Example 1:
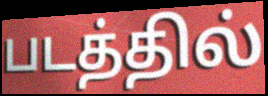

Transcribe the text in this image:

படத்தில்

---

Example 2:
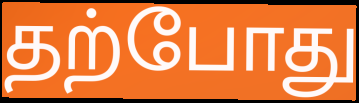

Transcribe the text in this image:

தற்போது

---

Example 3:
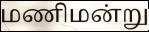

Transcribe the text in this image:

மணிமன்று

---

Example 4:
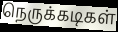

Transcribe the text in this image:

நெருக்கடிகள்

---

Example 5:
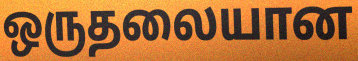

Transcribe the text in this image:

ஒருதலையான